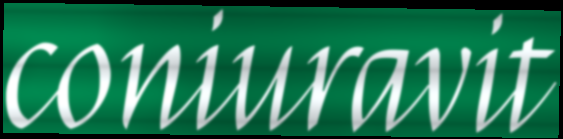
coniuravit